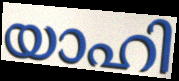
യാഹി